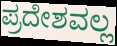
ಪ್ರದೇಶವಲ್ಲ